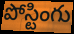
పోస్టింగు